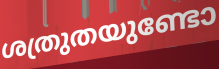
ശത്രുതയുണ്ടോ